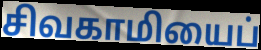
சிவகாமியைப்